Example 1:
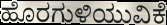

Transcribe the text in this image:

ಹೊರಗುಳಿಯುವಿಕೆ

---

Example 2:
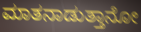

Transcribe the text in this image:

ಮಾತನಾಡುತ್ತಾನೋ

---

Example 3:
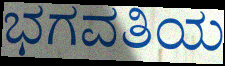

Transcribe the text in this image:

ಭಗವತಿಯ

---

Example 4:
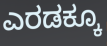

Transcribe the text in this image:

ಎರಡಕ್ಕೂ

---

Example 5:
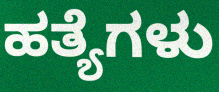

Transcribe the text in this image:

ಹತ್ಯೆಗಳು